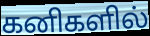
கனிகளில்